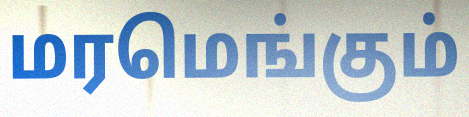
மரமெங்கும்